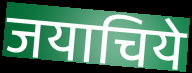
जयाचिये